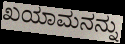
ಖಯಾಮನನ್ನು